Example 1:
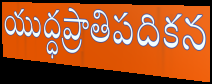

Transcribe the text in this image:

యుద్ధప్రాతిపదికన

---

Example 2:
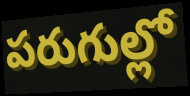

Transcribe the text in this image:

పరుగుల్లో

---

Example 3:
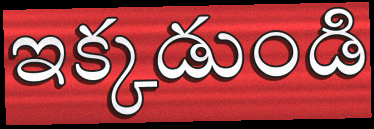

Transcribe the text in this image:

ఇక్కడుండి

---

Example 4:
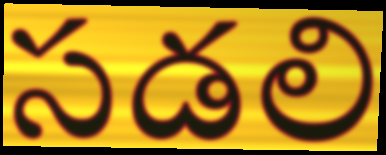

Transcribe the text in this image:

సడలి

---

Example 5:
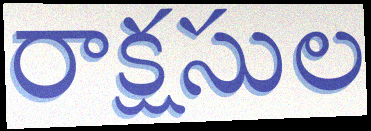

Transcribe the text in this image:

రాక్షసుల